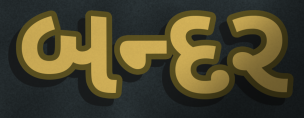
બન્દર